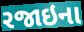
રજાઇના